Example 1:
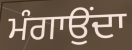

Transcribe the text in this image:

ਮੰਗਾਉਂਦਾ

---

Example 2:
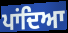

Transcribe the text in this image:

ਪਾਂਦਿਆ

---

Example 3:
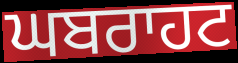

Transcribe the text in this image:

ਘਬਰਾਹਟ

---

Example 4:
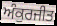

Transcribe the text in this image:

ਅੰਕੁਰਜੀਤ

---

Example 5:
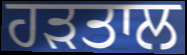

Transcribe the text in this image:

ਹੜਤਾਲ